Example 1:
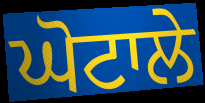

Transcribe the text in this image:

ਘੋਟਾਲੇ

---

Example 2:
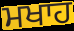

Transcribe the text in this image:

ਮਖਾਹ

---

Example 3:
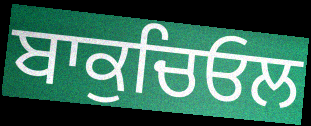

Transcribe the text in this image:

ਬਾਕੁਚਿਓਲ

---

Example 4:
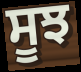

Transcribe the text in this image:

ਸੂਝ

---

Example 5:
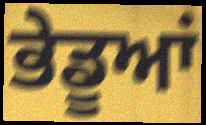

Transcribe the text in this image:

ਭੇਡੂਆਂ